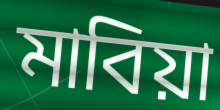
মাবিয়া